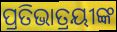
ପ୍ରତିଭାତ୍ରୟୀଙ୍କ